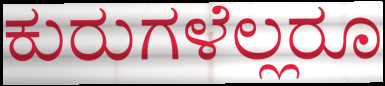
ಕುರುಗಳೆಲ್ಲರೂ